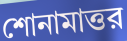
শোনামাত্তর